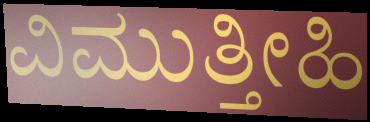
ವಿಮುತ್ತೀಹಿ